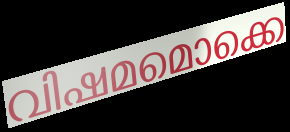
വിഷമമൊക്കെ